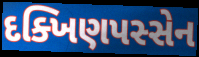
દક્ખિણપસ્સેન